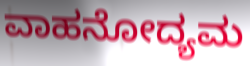
ವಾಹನೋದ್ಯಮ